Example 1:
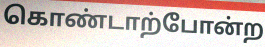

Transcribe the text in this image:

கொண்டாற்போன்ற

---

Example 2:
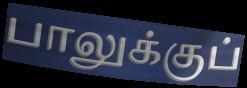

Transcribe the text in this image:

பாலுக்குப்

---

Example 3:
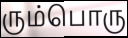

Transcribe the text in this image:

ரும்பொரு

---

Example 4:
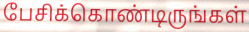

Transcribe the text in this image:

பேசிக்கொண்டிருங்கள்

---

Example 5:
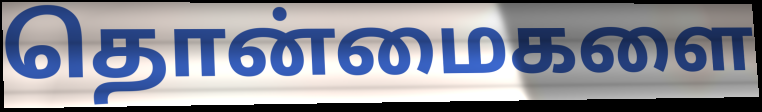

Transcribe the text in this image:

தொன்மைகளை